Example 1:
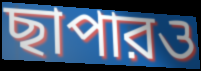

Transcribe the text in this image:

ছাপারও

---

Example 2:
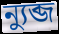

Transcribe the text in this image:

ন্যুব্জ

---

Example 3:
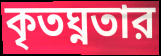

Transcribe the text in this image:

কৃতঘ্নতার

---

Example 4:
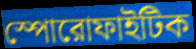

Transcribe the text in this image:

স্পোরোফাইটিক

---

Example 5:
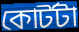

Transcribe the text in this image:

কোর্টটা